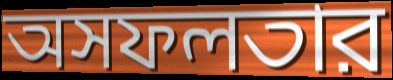
অসফলতার